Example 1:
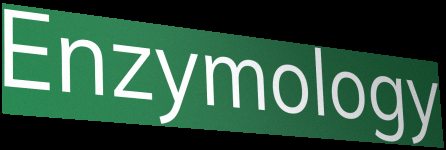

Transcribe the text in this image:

Enzymology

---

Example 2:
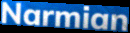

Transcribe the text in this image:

Narmian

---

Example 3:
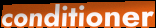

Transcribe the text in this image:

conditioner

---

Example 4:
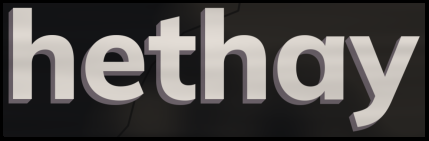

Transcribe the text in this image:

hethay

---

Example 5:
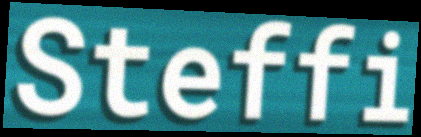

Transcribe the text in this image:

Steffi